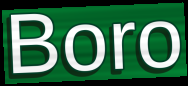
Boro